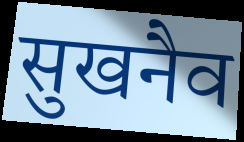
सुखनैव